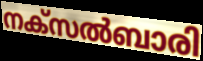
നക്സൽബാരി